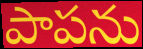
పాపను